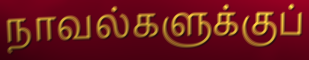
நாவல்களுக்குப்